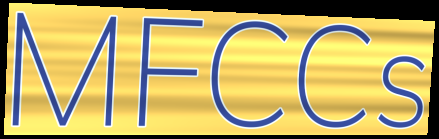
MFCCs